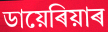
ডায়েৰিয়াৰ